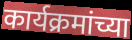
कार्यक्रमांच्या